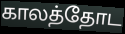
காலத்தோட